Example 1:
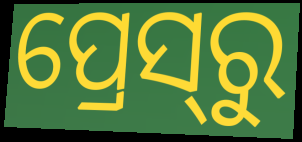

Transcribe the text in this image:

ପ୍ରେସ୍‍ରୁ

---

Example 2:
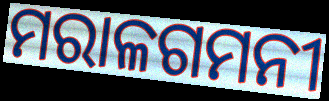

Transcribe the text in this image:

ମରାଳଗମନୀ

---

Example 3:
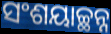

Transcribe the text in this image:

ସଂଶୟାଚ୍ଛନ୍ନ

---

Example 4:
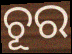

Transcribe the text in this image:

ଚୂର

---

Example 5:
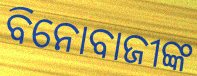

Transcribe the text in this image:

ବିନୋବାଜୀଙ୍କ